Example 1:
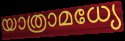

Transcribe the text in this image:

യാത്രാമധ്യേ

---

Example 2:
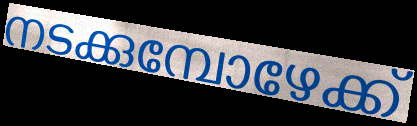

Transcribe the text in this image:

നടക്കുമ്പോഴേക്ക്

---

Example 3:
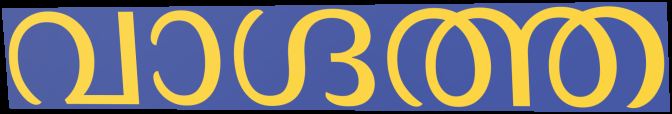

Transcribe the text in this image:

വാഗ്ദത്ത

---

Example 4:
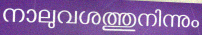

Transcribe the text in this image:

നാലുവശത്തുനിന്നും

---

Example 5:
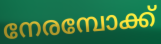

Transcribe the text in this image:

നേരമ്പോക്ക്